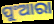
ପୁଂଆରା